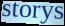
storys